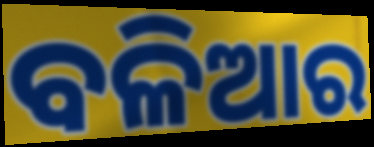
ବଳିଆର